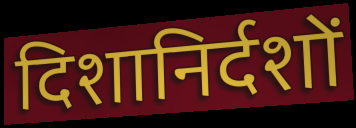
दिशानिर्दशों